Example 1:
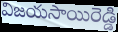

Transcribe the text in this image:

విజయసాయిరెడ్డి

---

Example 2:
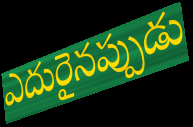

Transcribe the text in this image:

ఎదురైనప్పుడు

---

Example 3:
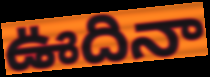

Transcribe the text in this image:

ఊదినా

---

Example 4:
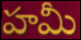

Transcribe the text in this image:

హమీ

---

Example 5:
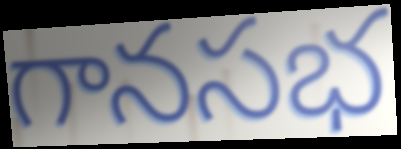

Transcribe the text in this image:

గానసభ